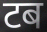
टब